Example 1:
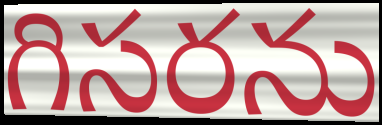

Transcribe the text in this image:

గిసరను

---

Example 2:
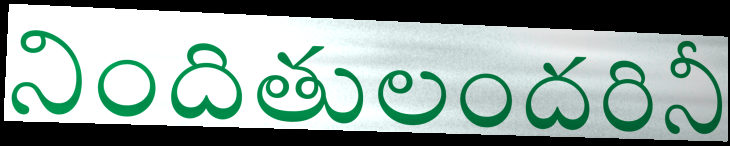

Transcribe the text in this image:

నిందితులందరినీ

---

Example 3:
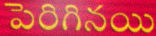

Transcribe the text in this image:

పెరిగినయి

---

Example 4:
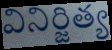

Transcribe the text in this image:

వినిర్జిత్య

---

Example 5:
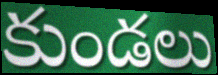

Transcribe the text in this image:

కుండలు